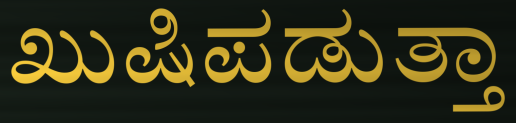
ಖುಷಿಪಡುತ್ತಾ